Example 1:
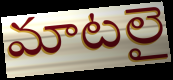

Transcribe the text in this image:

మాటలై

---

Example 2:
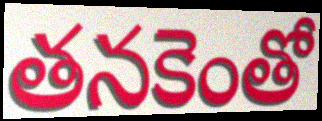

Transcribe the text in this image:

తనకెంతో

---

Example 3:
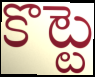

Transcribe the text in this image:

కొట్టె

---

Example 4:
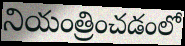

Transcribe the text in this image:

నియంత్రించడంలో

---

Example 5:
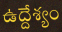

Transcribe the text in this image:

ఉద్దేశ్యం